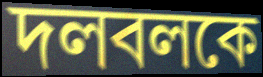
দলবলকে